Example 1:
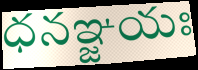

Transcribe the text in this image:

ధనఞ్జయః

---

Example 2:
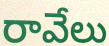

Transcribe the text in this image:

రావేలు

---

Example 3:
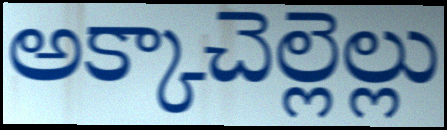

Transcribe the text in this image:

అక్కాచెల్లెల్లు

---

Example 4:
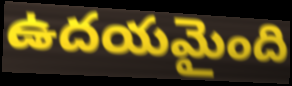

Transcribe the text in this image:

ఉదయమైంది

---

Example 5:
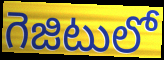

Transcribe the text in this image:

గెజిటులో